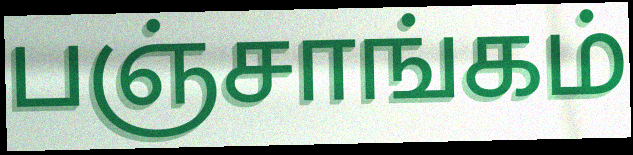
பஞ்சாங்கம்